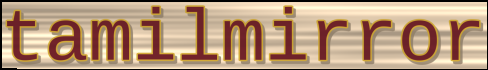
tamilmirror